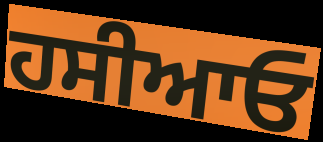
ਹਸੀਆਓ